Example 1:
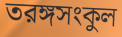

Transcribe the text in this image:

তরঙ্গসংকুল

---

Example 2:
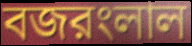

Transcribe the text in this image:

বজরংলাল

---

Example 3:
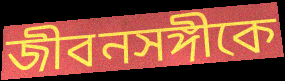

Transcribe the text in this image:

জীবনসঙ্গীকে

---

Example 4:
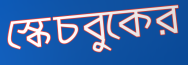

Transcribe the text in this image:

স্কেচবুকের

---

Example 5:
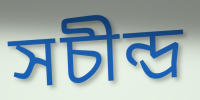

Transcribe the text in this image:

সচীন্দ্র